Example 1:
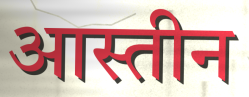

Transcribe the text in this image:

आस्तीन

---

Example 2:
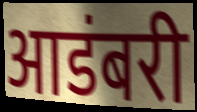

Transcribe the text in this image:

आडंबरी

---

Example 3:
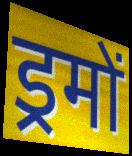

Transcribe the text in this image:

ड्रमों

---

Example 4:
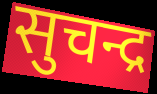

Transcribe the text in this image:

सुचन्द्र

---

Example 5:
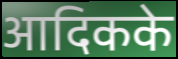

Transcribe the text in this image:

आदिकके